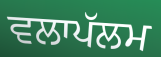
ਵਲਾਪੱਲਮ